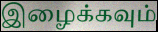
இழைக்கவும்